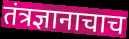
तंत्रज्ञानाचाच